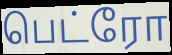
பெட்ரோ